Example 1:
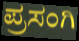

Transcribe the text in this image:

ಪ್ರಸಂಗಿ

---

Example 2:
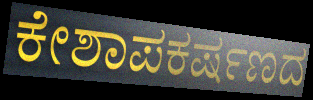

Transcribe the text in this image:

ಕೇಶಾಪಕರ್ಷಣದ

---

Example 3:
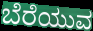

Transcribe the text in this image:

ಬೆರೆಯುವ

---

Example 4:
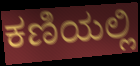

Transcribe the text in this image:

ಕಣಿಯಲ್ಲಿ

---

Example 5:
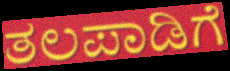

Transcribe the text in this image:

ತಲಪಾಡಿಗೆ